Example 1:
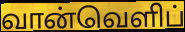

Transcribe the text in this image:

வான்வெளிப்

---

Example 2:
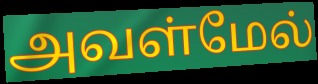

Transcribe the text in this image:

அவள்மேல்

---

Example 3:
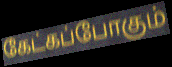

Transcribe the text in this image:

கேட்கப்போகும்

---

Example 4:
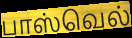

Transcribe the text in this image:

பாஸ்வெல்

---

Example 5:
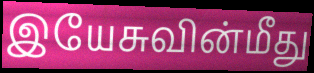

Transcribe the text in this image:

இயேசுவின்மீது